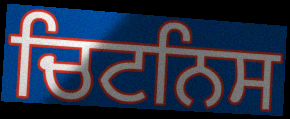
ਚਿਟਨਿਸ